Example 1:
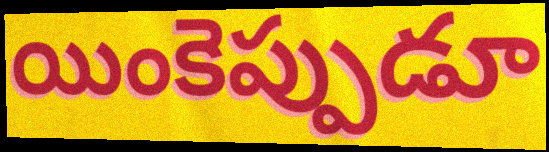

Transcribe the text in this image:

యింకెప్పుడూ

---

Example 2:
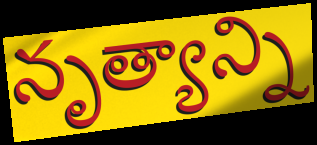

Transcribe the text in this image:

నృత్యాన్ని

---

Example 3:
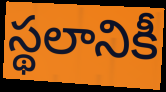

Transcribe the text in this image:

స్థలానికీ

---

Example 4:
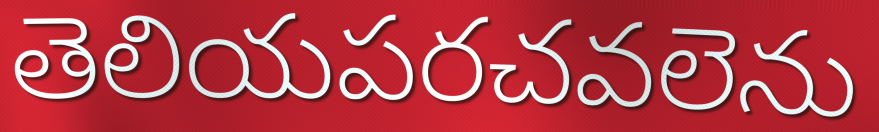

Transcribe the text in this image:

తెలియపరచవలెను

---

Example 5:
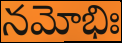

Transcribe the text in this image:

నమోభిః